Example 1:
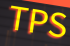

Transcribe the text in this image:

TPS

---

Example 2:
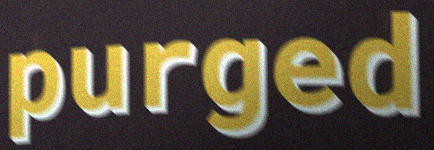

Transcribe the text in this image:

purged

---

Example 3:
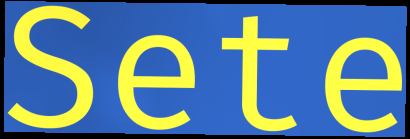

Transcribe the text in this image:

Sete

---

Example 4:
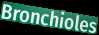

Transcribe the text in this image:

Bronchioles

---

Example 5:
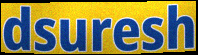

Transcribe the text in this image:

dsuresh